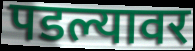
पडल्यावर